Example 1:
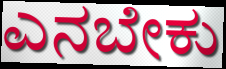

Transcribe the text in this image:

ಎನಬೇಕು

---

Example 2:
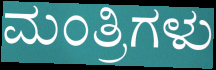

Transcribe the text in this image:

ಮಂತ್ರಿಗಳು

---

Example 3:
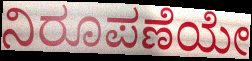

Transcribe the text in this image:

ನಿರೂಪಣೆಯೇ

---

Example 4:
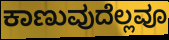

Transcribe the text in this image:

ಕಾಣುವುದೆಲ್ಲವೂ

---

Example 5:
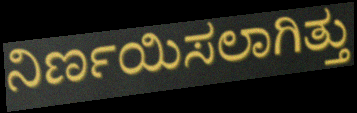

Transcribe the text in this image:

ನಿರ್ಣಯಿಸಲಾಗಿತ್ತು